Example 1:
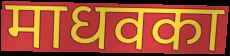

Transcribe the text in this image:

माधवका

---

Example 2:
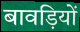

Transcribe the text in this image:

बावड़ियों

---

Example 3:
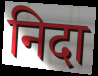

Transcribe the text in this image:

निदा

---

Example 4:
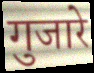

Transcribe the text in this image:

गुजारे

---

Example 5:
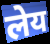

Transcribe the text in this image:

लेय